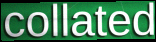
collated